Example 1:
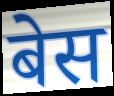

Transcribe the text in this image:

बेस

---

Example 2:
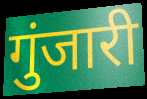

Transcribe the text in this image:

गुंजारी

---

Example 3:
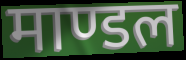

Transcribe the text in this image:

माण्डल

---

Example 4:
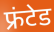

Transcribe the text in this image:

फ्रंटेड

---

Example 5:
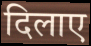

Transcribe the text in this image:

दिलाए